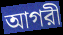
আগরী